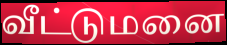
வீட்டுமனை